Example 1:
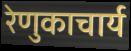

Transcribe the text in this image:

रेणुकाचार्य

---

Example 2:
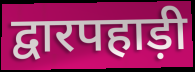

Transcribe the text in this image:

द्वारपहाड़ी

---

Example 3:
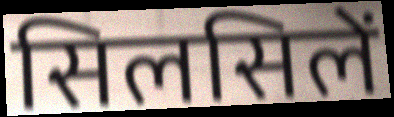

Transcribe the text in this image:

सिलसिलें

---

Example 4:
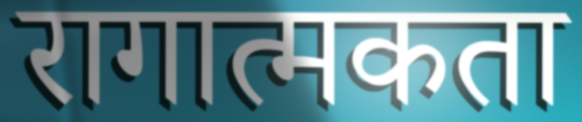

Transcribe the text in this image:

रागात्मकता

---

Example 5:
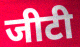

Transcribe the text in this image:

जीटी